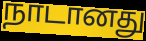
நாடானது